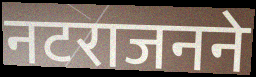
नटराजनने